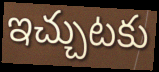
ఇచ్చుటకు